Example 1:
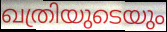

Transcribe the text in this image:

ഖത്രിയുടെയും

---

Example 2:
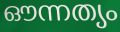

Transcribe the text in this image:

ഔന്നത്യം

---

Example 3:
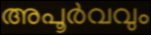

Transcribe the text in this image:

അപൂർവവും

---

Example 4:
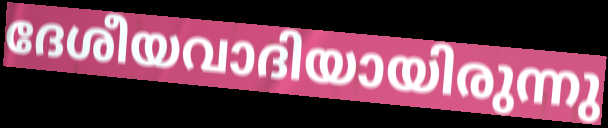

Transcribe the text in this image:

ദേശീയവാദിയായിരുന്നു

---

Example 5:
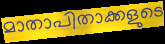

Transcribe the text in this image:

മാതാപിതാക്കളുടെ